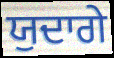
ਯੁਦਾਗੇ